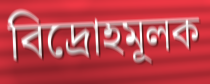
বিদ্রোহমূলক